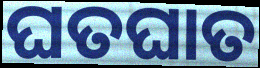
ଘତଘାତ